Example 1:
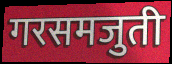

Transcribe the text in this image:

गरसमजुती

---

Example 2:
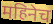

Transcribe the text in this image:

महिनेच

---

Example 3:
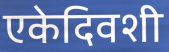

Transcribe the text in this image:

एकेदिवशी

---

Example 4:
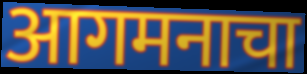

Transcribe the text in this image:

आगमनाचा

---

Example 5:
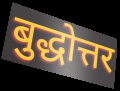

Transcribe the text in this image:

बुद्धोत्तर